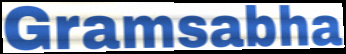
Gramsabha